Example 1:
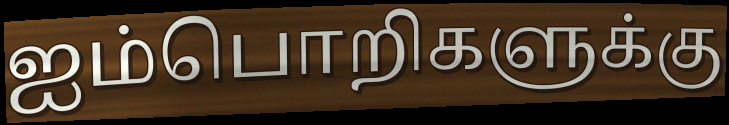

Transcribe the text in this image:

ஐம்பொறிகளுக்கு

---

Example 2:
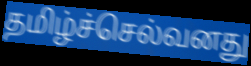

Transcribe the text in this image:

தமிழ்ச்செல்வனது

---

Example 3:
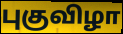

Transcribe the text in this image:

புகுவிழா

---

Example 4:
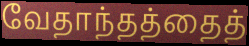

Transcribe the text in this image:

வேதாந்தத்தைத்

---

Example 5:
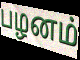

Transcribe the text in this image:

பழனம்